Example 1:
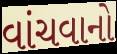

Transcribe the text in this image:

વાંચવાનો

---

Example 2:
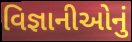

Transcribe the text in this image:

વિજ્ઞાનીઓનું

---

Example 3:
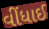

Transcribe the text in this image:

વીંધાઈ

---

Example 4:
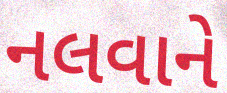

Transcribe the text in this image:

નલવાને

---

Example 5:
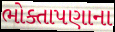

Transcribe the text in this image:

ભોક્તાપણાના